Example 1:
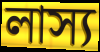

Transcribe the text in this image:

লাস্য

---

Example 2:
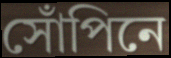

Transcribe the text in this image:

সোঁপিনে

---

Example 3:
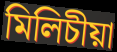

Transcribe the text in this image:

মিলিচীয়া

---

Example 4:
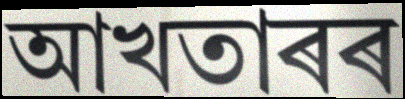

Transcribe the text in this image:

আখতাৰৰ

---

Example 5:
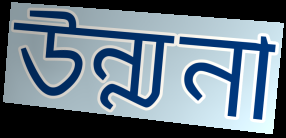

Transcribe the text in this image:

উন্মনা